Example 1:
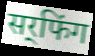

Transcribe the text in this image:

सर्फिंग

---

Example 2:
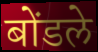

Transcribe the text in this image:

बोंडले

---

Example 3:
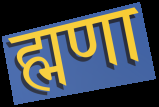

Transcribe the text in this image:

ह्मणा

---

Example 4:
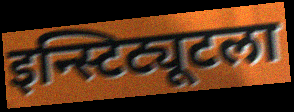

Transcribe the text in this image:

इन्स्टिट्यूटला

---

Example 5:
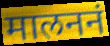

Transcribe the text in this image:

मालननं